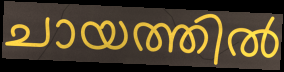
ചായത്തിൽ